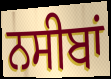
ਨਸੀਬਾਂ